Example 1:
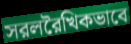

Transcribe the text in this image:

সরলরৈখিকভাবে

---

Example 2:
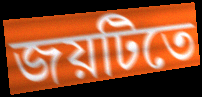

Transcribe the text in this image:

জয়টিতে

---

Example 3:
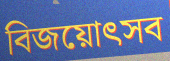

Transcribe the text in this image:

বিজয়োৎসব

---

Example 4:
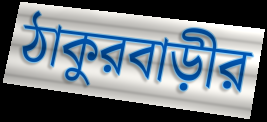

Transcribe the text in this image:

ঠাকুরবাড়ীর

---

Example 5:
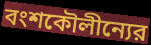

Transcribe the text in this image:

বংশকৌলীন্যের